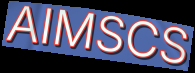
AIMSCS